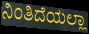
ನಿಂತಿದೆಯಲ್ಲಾ